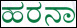
ಹರನಾ